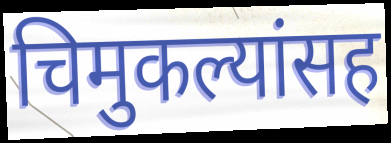
चिमुकल्यांसह